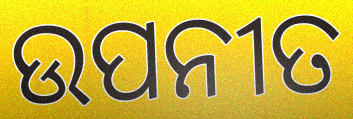
ଉପନୀତ